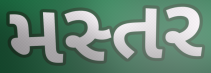
મસ્તર